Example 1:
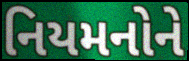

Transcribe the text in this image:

નિયમનોને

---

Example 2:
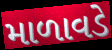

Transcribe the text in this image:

માળાવડે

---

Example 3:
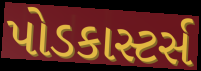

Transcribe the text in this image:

પોડકાસ્ટર્સ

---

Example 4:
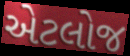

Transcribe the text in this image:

એટલોજ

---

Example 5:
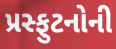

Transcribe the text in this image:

પ્રસ્ફુટનોની